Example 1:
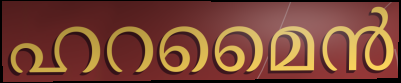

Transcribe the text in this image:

ഹറമൈൻ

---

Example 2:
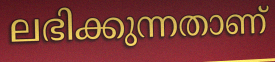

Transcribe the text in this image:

ലഭിക്കുന്നതാണ്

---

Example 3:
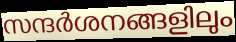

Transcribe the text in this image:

സന്ദർശനങ്ങളിലും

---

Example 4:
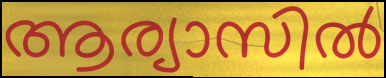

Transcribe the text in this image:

ആര്യാസിൽ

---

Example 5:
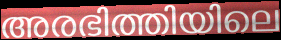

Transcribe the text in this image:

അരഭിത്തിയിലെ